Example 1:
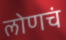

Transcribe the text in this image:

लोणचं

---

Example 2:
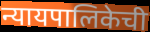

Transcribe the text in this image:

न्यायपालिकेची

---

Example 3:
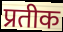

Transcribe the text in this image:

प्रतीक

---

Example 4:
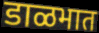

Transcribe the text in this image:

डाळभात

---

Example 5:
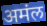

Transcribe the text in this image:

अमंल